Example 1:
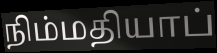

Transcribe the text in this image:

நிம்மதியாப்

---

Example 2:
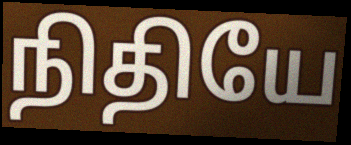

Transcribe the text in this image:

நிதியே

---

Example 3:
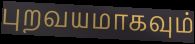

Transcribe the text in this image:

புறவயமாகவும்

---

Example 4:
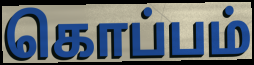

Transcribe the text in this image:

கொப்பம்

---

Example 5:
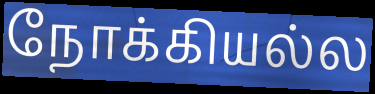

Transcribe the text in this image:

நோக்கியல்ல